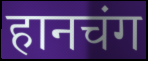
हानचंग